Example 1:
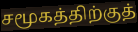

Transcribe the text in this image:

சமூகத்திற்குத்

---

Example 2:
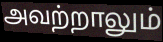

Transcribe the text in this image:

அவற்றாலும்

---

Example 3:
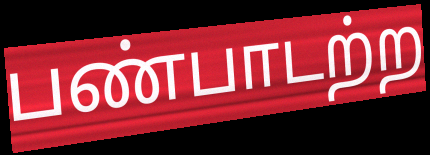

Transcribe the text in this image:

பண்பாடற்ற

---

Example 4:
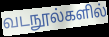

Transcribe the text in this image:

வடநூல்களில்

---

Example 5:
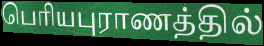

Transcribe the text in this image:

பெரியபுராணத்தில்